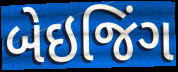
બેઇજિંગ